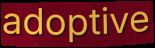
adoptive